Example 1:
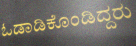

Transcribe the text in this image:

ಓಡಾಡಿಕೊಂಡಿದ್ದರು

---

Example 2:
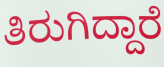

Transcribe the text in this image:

ತಿರುಗಿದ್ದಾರೆ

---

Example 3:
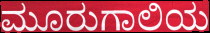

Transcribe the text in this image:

ಮೂರುಗಾಲಿಯ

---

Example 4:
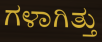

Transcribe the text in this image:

ಗಳಾಗಿತ್ತು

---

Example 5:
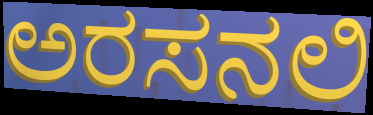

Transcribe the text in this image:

ಅರಸನಲಿ